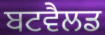
ਬਟਵੈਲਡ